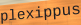
plexippus